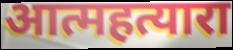
आत्महत्यारा